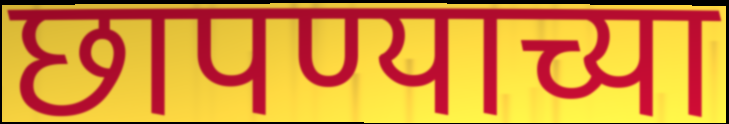
छापण्याच्या